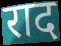
राद